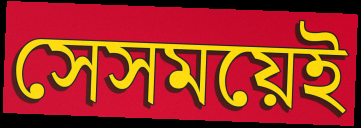
সেসময়েই